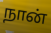
நான்